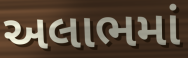
અલાભમાં